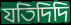
যতিদিদি